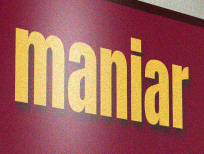
maniar